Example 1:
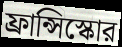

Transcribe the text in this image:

ফ্রান্সিস্কোর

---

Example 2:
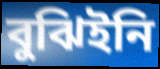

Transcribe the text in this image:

বুঝিইনি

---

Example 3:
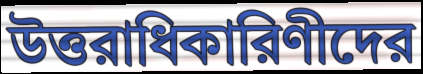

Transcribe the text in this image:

উত্তরাধিকারিণীদের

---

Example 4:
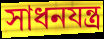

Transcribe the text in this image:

সাধনযন্ত্র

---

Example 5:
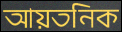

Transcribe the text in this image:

আয়তনিক